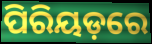
ପିରିୟଡ଼ରେ